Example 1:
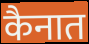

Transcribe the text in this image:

कैनात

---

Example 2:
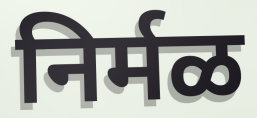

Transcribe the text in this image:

निर्मळ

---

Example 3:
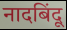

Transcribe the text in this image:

नादबिंदू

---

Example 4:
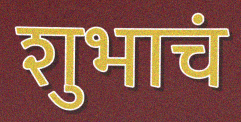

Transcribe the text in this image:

शुभाचं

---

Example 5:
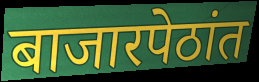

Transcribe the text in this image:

बाजारपेठांत